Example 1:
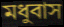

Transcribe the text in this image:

মধুবাস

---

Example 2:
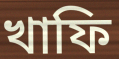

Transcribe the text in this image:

খাফি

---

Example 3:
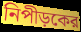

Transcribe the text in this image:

নিপীড়কের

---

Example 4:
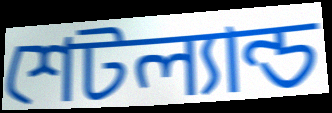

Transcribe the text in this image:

শেটল্যান্ড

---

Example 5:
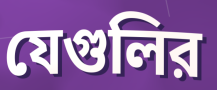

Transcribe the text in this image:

যেগুলির